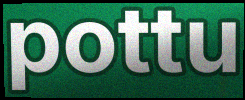
pottu